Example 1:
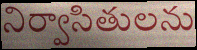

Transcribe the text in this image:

నిర్వాసితులను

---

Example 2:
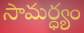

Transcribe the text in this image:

సామర్ధ్యం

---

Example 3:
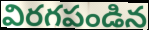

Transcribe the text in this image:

విరగపండిన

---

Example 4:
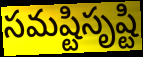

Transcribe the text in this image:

సమష్టిసృష్టి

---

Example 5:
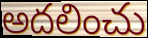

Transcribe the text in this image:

అదలించు